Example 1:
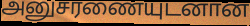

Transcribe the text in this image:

அனுசரணையுடனான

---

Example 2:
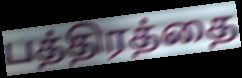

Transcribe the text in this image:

பத்திரத்தை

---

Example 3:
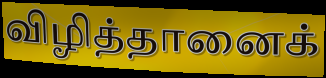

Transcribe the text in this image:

விழித்தானைக்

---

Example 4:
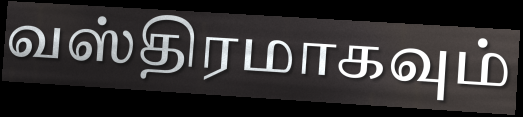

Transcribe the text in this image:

வஸ்திரமாகவும்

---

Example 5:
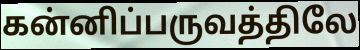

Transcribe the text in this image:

கன்னிப்பருவத்திலே